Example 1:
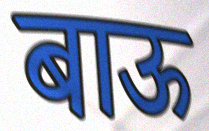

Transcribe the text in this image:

बाऊ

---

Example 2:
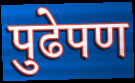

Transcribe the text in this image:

पुढेपण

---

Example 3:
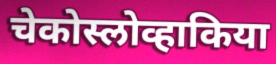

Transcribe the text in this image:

चेकोस्लोव्हाकिया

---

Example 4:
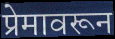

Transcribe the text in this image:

प्रेमावरून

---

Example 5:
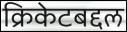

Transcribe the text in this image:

क्रिकेटबद्दल